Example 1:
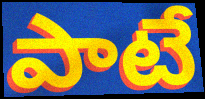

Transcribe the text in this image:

పాటే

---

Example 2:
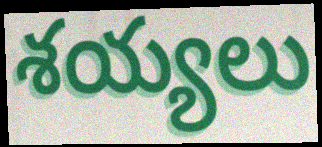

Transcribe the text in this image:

శయ్యలు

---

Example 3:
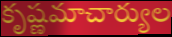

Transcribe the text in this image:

కృష్ణమాచార్యుల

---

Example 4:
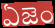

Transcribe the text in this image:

ఏజెం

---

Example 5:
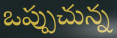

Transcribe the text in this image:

ఒప్పుచున్న